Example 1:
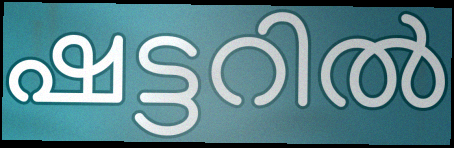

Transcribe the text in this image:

ഷട്ടറിൽ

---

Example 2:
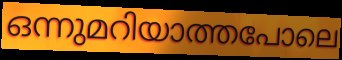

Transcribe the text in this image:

ഒന്നുമറിയാത്തപോലെ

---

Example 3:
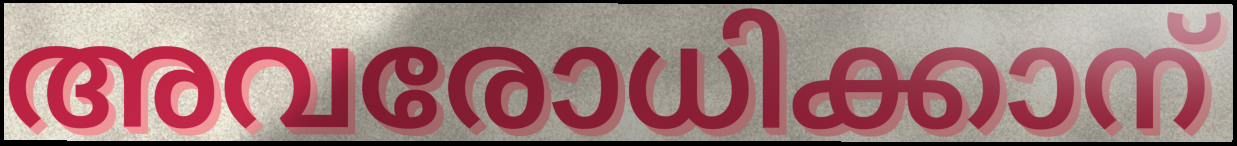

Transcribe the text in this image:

അവരോധിക്കാന്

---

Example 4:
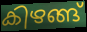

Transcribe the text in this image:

കിഴങ്ങ്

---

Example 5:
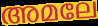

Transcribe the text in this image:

അമലേ